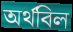
অর্থবিল